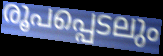
രൂപപ്പെടലും